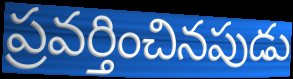
ప్రవర్తించినపుడు